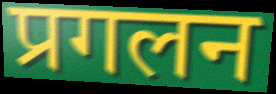
प्रगलन